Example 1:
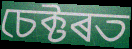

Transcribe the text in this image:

চেক্টৰত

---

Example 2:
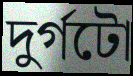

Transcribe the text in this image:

দুৰ্গটো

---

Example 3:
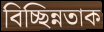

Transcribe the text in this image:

বিচ্ছিন্নতাক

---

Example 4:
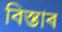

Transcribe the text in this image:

বিস্তাৰ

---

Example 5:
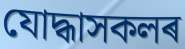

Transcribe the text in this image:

যোদ্ধাসকলৰ